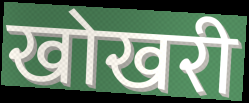
खोखरी